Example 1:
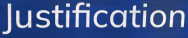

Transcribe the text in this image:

Justification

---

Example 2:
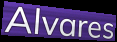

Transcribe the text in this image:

Alvares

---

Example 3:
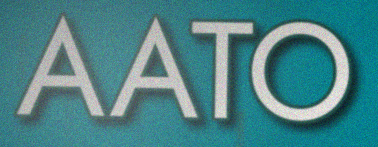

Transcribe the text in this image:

AATO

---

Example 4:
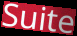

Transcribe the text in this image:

Suite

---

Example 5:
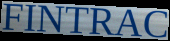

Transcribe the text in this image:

FINTRAC